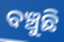
ବଞ୍ଚୁଛି